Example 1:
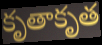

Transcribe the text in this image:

కృతాకృత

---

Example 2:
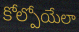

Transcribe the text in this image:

కోల్పోయేలా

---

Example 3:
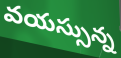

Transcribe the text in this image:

వయస్సున్న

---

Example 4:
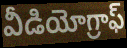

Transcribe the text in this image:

వీడియోగ్రాఫ్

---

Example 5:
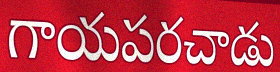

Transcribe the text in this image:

గాయపరచాడు